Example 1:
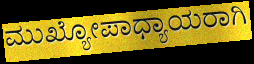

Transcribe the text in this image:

ಮುಖ್ಯೋಪಾಧ್ಯಾಯರಾಗಿ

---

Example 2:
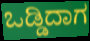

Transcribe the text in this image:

ಒಡ್ಡಿದಾಗ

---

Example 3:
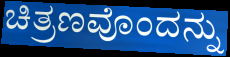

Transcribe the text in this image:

ಚಿತ್ರಣವೊಂದನ್ನು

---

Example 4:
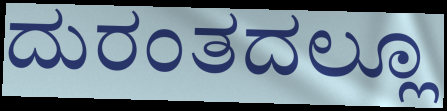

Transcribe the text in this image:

ದುರಂತದಲ್ಲೂ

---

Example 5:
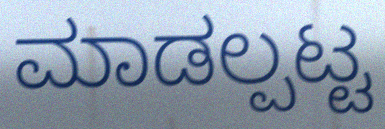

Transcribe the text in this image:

ಮಾಡಲ್ಪಟ್ಟ